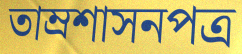
তাম্রশাসনপত্র